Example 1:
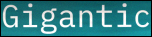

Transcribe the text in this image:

Gigantic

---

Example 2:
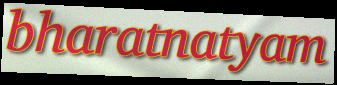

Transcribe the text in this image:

bharatnatyam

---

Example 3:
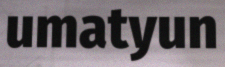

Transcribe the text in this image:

umatyun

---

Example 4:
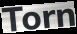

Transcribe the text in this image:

Torn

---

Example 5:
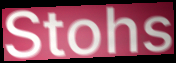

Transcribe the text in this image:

Stohs